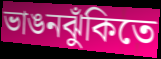
ভাঙনঝুঁকিতে